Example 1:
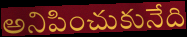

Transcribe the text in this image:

అనిపించుకునేది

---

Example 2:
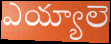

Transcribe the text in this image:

ఎయ్యాలె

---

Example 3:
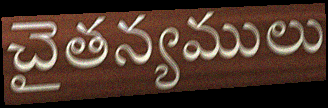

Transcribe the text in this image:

చైతన్యములు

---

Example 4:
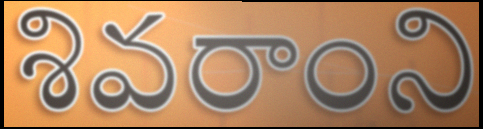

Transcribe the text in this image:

శివరాంని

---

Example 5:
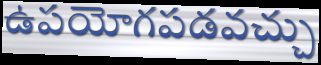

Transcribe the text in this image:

ఉపయోగపడవచ్చు